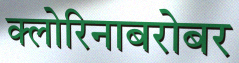
क्लोरिनाबरोबर